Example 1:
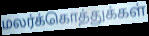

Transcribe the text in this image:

மலர்க்கொத்துக்கள்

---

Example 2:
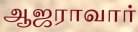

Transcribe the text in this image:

ஆஜராவார்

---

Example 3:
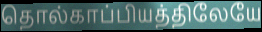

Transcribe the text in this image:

தொல்காப்பியத்திலேயே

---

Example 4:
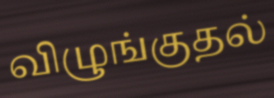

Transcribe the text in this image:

விழுங்குதல்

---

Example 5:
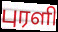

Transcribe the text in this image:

புரளி